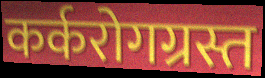
कर्करोगग्रस्त